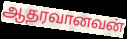
ஆதரவானவன்